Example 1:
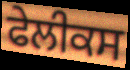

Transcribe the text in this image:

ਫੇਲੀਕਸ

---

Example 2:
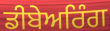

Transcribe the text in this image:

ਡੀਬੇਅਰਿੰਗ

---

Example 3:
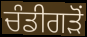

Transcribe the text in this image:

ਚੰਡੀਗੜੋਂ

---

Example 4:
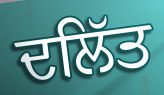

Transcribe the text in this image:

ਦਲਿੱਤ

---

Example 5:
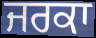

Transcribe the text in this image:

ਜਰਕਾ